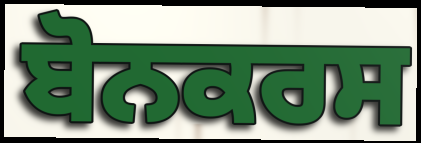
ਬੋਨਕਰਸ